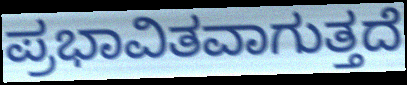
ಪ್ರಭಾವಿತವಾಗುತ್ತದೆ